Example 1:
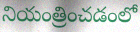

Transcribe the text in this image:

నియంత్రించడంలో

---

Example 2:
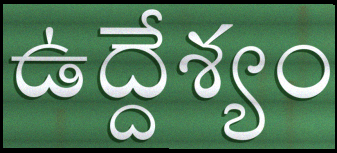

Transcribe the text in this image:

ఉద్దేశ్యం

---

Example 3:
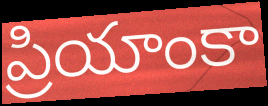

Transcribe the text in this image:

ప్రియాంకా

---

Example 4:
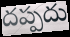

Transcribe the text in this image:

దప్పదు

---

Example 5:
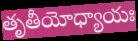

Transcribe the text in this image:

తృతీయోధ్యాయః